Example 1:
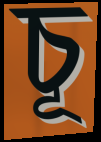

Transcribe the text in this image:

চূ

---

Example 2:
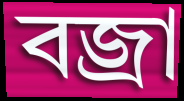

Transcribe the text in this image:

বজ্রা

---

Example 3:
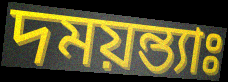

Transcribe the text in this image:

দময়ন্ত্যাঃ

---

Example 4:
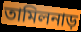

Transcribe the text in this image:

তামিলনাড়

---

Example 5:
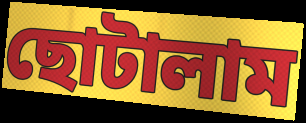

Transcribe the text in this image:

ছোটালাম